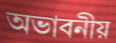
অভাবনীয়